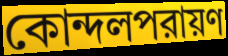
কোন্দলপরায়ণ